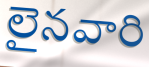
లైనవారి